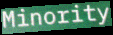
Minority